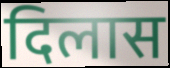
दिलास